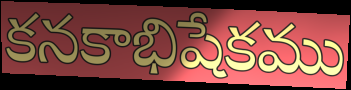
కనకాభిషేకము